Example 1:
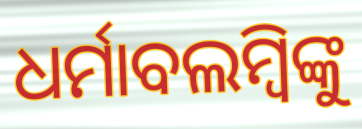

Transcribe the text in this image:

ଧର୍ମାବଲମ୍ବିଙ୍କୁ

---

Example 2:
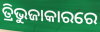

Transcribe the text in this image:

ତ୍ରିଭୁଜାକାରରେ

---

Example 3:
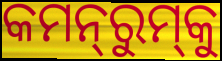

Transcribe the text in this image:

କମନ୍‍ରୁମ୍‍କୁ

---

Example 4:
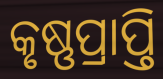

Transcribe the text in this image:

କୃଷ୍ଣପ୍ରାପ୍ତି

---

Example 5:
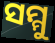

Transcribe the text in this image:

ସମ୍ମୁ